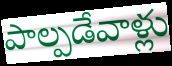
పాల్పడేవాళ్లు